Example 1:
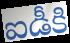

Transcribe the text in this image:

ఐడీకి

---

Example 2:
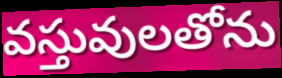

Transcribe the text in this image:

వస్తువులతోను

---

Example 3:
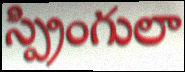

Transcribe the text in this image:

స్ప్రింగులా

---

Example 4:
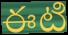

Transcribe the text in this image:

ఈటి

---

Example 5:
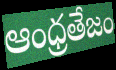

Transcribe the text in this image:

ఆంధ్రతేజం